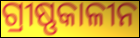
ଗ୍ରୀଷ୍ଣକାଳୀନ